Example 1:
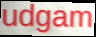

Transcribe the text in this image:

udgam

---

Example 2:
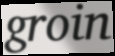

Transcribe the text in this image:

groin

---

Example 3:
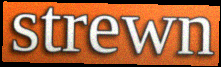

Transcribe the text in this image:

strewn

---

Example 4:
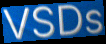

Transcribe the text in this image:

VSDs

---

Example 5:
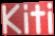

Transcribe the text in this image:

Kiti